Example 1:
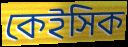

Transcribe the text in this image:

কেইসিক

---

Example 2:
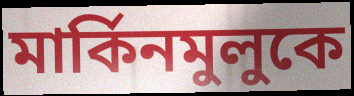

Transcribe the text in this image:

মার্কিনমুলুকে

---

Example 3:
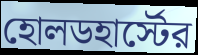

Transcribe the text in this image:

হোলডহার্স্টের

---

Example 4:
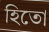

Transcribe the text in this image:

হিতো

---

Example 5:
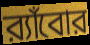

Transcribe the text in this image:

র‍্যাঁবোর